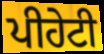
ਪੀਹੇਟੀ